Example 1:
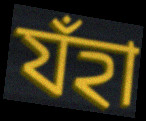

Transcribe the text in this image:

যঁহা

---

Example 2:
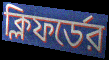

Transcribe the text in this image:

ক্লিফর্ডের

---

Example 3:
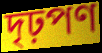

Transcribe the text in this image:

দৃঢ়পণ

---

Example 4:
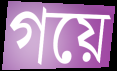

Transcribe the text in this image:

গয়ে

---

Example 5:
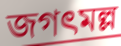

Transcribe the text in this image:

জগৎমল্ল